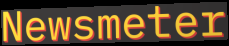
Newsmeter